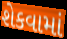
શેકવામાં